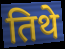
तिथे